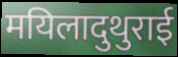
मयिलादुथुराई